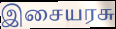
இசையரசு